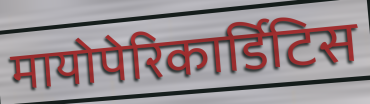
मायोपेरिकार्डिटिस